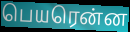
பெயரென்ன